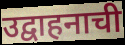
उद्वाहनाची